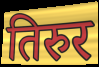
तिरुर